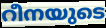
റീനയുടെ